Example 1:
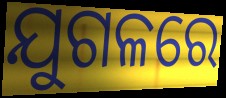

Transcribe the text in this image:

ଯୁଗଳରେ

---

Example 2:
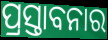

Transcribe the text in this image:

ପ୍ରସ୍ତାବନାର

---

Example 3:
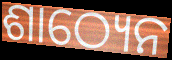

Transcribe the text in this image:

ଶାଠ୍ୟେନ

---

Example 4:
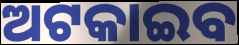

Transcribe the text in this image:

ଅଟକାଇବ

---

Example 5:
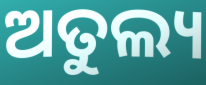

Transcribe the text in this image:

ଅତୁଲ୍ୟ